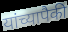
यांच्यापैकी